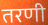
तरणी